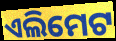
ଏଲିମେଟ